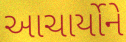
આચાર્યોને